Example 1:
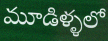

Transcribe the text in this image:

మూడిళ్ళలో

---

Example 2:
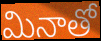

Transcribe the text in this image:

మినాతో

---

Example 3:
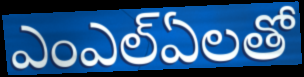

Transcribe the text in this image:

ఎంఎల్ఏలతో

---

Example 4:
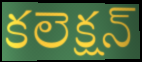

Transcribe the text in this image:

కలెక్షన్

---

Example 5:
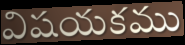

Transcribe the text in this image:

విషయకము